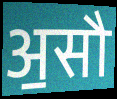
अ॒सौ